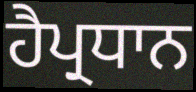
ਹੈਪ੍ਰਧਾਨ